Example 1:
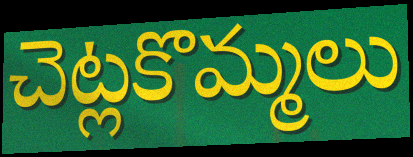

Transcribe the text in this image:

చెట్లకొమ్మలు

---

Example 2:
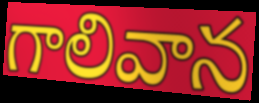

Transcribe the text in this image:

గాలివాన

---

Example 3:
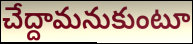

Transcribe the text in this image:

చేద్దామనుకుంటూ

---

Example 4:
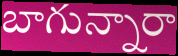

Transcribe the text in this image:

బాగున్నారా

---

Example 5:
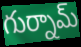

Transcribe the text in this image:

గుర్నామ్